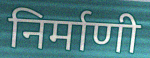
निर्माणी